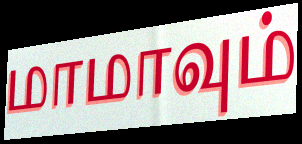
மாமாவும்